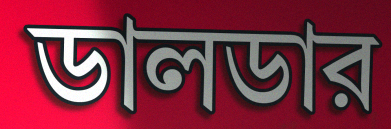
ডালডার